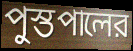
পুস্তপালের